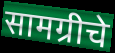
सामग्रीचे